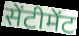
सेंटीमेंट